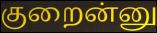
குறைன்னு